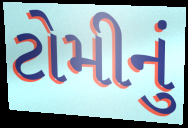
ટોમીનું